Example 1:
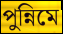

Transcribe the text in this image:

পুন্নিমে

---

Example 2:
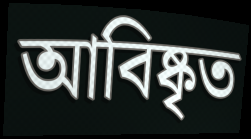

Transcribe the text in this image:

আবিষ্কৃত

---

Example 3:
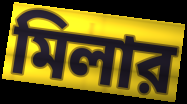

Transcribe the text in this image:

মিলার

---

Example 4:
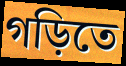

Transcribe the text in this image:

গড়িতে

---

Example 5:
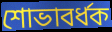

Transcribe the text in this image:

শোভাবর্ধক